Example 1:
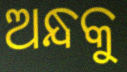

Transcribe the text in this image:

ଅନ୍ଧକୁ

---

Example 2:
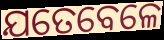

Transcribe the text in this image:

ଯତେବେଳେ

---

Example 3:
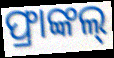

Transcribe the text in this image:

ଫ୍ରାଙ୍କଲ୍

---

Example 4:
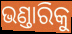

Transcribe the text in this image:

ଭଣ୍ଡାରିକୁ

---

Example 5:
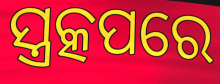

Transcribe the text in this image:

ସ୍ତ୍ରତ୍କପରେ